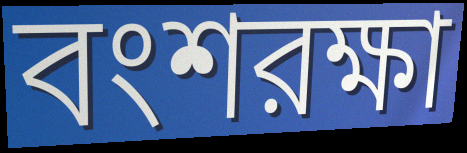
বংশরক্ষা